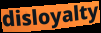
disloyalty